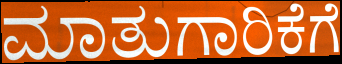
ಮಾತುಗಾರಿಕೆಗೆ